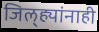
जिल्ह्यांनाही